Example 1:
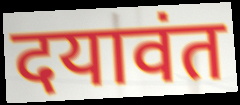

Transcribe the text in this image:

दयावंत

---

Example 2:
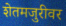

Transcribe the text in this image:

शेतमजुरीवर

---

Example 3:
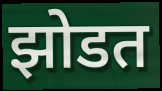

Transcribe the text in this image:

झोडत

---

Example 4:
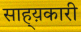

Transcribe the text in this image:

साह्य़कारी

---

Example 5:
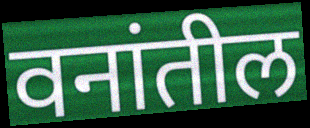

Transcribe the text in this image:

वनांतील